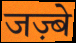
जज़्बे